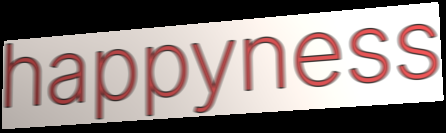
happyness